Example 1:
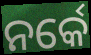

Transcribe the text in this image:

ନର୍କେ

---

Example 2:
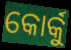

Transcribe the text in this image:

କୋର୍କୁ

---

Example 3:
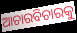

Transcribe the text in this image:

ଆଚାରବିଚାରକୁ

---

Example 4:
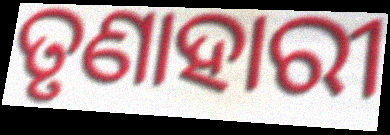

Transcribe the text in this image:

ତୃଣାହାରୀ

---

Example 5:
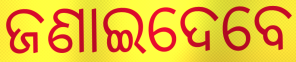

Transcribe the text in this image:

ଜଣାଇଦେବେ